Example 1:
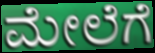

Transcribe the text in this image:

ಮೇಲೆಗೆ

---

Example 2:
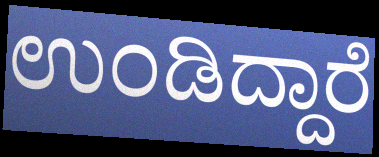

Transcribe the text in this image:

ಉಂಡಿದ್ದಾರೆ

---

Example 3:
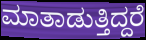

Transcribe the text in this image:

ಮಾತಾಡುತ್ತಿದ್ದರೆ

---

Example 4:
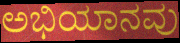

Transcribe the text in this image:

ಅಭಿಯಾನವು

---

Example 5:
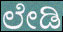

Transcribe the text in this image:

ಲೇಡಿ